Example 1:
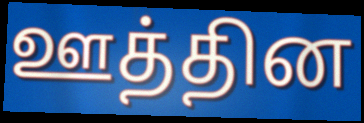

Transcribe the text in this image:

ஊத்தின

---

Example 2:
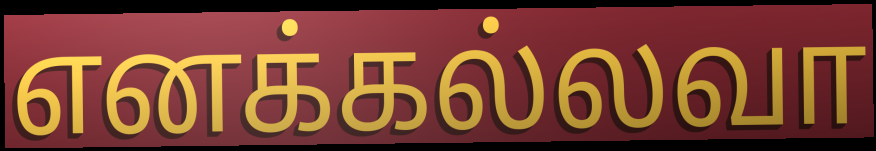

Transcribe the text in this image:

எனக்கல்லவா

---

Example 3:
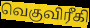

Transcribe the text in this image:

வெகுவிரீகி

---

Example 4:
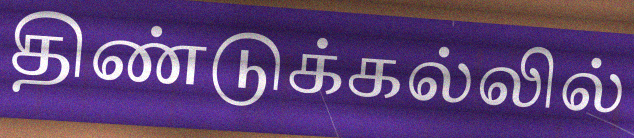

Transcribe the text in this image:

திண்டுக்கல்லில்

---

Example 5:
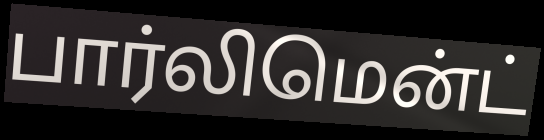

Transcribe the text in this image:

பார்லிமென்ட்